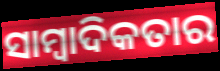
ସାମ୍ୱାଦିକତାର